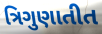
ત્રિગુણાતીત